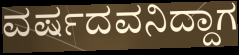
ವರ್ಷದವನಿದ್ದಾಗ